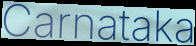
Carnataka